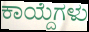
ಕಾಯ್ದೆಗಳು